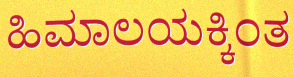
ಹಿಮಾಲಯಕ್ಕಿಂತ